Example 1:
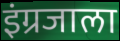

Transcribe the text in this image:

इंग्रजाला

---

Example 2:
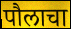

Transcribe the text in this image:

पौलाचा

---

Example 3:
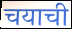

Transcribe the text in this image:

चयाची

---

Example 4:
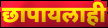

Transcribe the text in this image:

छापायलाही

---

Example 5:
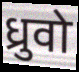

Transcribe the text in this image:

ध्रुवो